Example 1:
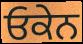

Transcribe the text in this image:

ਓਕੇਨ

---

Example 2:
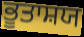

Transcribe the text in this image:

ਭੂਤਾਸ਼ਯ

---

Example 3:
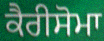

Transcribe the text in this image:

ਕੈਰੀਸੋਮਾ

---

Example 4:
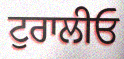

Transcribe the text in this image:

ਟੁਰਾਲੀਓ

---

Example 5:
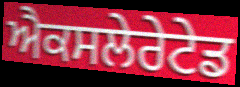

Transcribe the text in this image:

ਐਕਸਲੇਰੇਟੇਡ